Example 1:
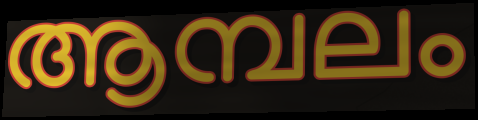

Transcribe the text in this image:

ആമ്പലം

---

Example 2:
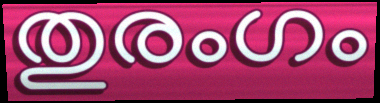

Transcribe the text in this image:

തുരംഗം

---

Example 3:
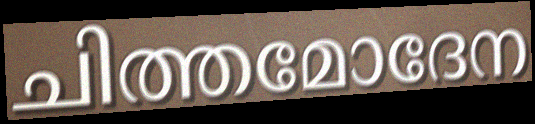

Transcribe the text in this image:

ചിത്തമോദേന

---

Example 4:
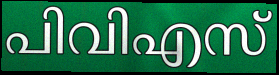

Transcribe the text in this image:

പിവിഎസ്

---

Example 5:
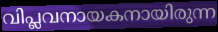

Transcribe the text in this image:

വിപ്ലവനായകനായിരുന്ന